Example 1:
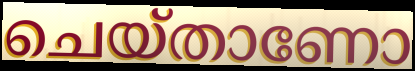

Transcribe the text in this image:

ചെയ്താണോ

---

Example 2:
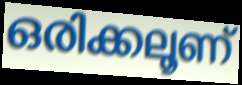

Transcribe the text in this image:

ഒരിക്കലൂണ്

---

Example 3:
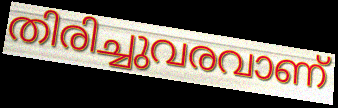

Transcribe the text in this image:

തിരിച്ചുവരവാണ്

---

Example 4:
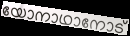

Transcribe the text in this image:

യോനാഥാനോട്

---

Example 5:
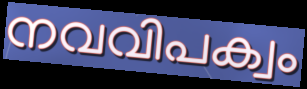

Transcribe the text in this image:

നവവിപക്വം